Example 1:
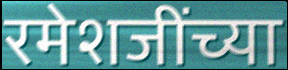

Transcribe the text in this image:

रमेशजींच्या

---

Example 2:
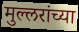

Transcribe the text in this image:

मुल्लरांच्या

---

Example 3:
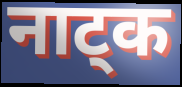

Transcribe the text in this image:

नाट्क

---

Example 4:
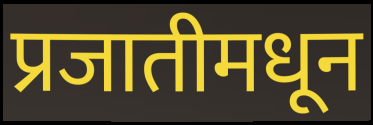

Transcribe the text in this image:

प्रजातीमधून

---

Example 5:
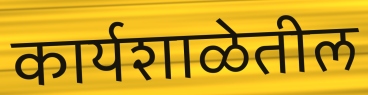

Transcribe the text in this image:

कार्यशाळेतील